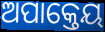
ଅପାକ୍ତେୟ